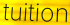
tuition